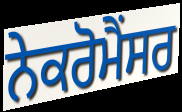
ਨੇਕਰੋਮੈਂਸਰ